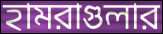
হামরাগুলার